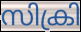
സിക്രി